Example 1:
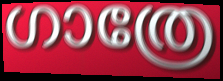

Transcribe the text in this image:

ഗാത്രേ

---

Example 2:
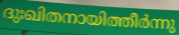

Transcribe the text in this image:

ദുഃഖിതനായിത്തീർന്നു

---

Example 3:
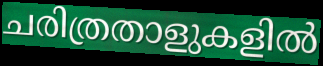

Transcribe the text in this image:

ചരിത്രതാളുകളിൽ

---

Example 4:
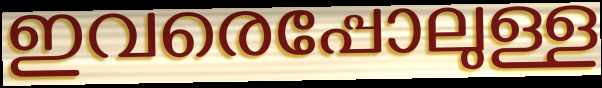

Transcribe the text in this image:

ഇവരെപ്പോലുള്ള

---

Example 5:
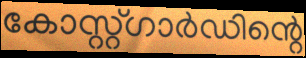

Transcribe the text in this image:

കോസ്റ്റ്ഗാർഡിന്റെ